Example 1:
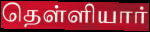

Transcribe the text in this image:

தெள்ளியார்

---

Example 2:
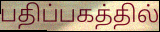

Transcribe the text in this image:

பதிப்பகத்தில்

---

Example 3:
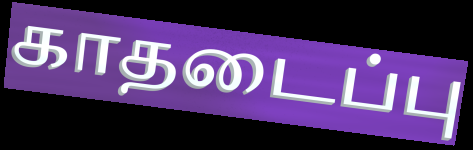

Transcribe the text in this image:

காதடைப்பு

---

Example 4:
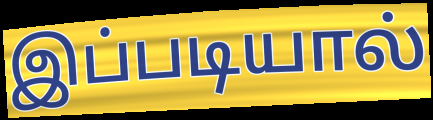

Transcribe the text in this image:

இப்படியால்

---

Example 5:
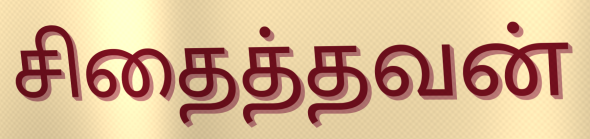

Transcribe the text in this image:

சிதைத்தவன்